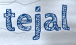
tejal